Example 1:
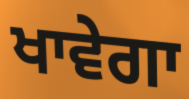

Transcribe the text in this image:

ਖਾਵੇਗਾ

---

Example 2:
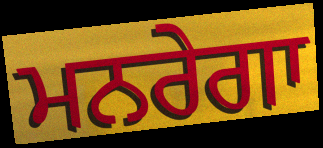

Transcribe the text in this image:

ਮਨਰੇਗਾ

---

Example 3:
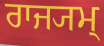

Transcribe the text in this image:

ਰਾਜ੍ਯਮ੍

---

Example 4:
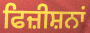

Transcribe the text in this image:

ਫਿਜ਼ੀਸ਼ਨਾਂ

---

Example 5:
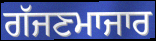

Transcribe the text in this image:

ਗੱਜਣਮਾਜਾਰ